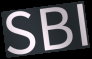
SBI